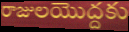
రాజులయొద్దకు